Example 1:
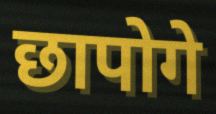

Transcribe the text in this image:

छापोगे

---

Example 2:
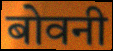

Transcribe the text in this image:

बोवनी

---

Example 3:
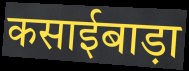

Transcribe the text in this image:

कसाईबाड़ा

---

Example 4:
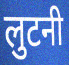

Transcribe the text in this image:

लुटनी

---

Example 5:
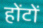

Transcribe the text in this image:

होंटों